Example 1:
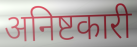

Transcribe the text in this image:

अनिष्टकारी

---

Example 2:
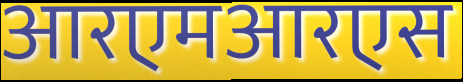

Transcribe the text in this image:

आरएमआरएस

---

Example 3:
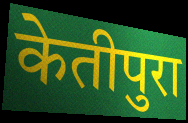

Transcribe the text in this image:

केतीपुरा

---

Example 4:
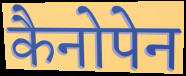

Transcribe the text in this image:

कैनोपेन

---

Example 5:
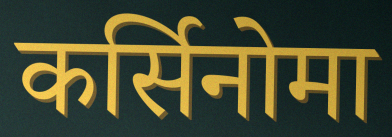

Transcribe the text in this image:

कर्सिनोमा